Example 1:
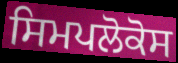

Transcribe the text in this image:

ਸਿਮਪਲੋਕੋਸ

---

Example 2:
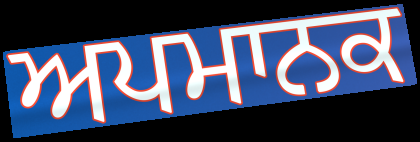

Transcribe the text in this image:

ਅਪਮਾਨਕ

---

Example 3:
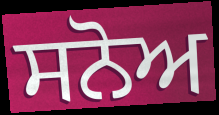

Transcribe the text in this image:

ਸਨੋਅ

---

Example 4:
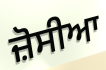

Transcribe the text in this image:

ਜ਼ੋਸੀਆ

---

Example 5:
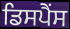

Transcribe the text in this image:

ਡਿਸਪੈਂਸ